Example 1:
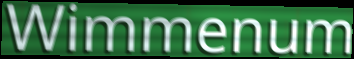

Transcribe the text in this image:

Wimmenum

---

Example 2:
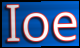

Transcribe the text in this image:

Ioe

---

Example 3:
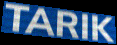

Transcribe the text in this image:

TARIK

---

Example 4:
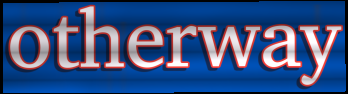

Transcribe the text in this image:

otherway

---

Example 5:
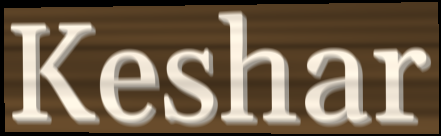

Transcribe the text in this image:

Keshar